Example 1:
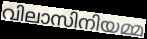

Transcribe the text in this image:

വിലാസിനിയമ്മ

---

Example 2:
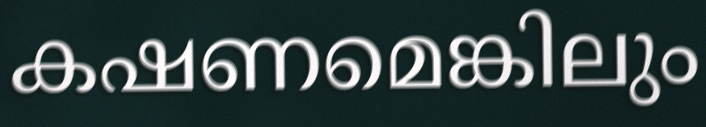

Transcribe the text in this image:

കഷണമെങ്കിലും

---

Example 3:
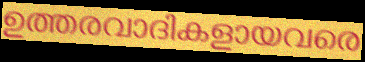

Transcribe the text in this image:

ഉത്തരവാദികളായവരെ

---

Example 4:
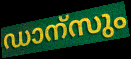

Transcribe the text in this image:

ഡാന്സും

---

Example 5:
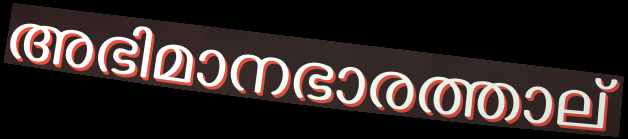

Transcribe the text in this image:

അഭിമാനഭാരത്താല്